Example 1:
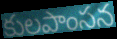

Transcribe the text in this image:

కులపాంసన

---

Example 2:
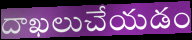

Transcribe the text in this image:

దాఖలుచేయడం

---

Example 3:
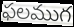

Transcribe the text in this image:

ఫలముగ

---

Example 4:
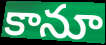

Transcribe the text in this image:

కానూ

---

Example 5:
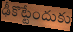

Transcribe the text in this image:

ఢీకొట్టేందుకు